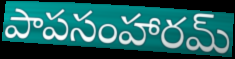
పాపసంహారమ్